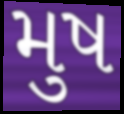
મુષ